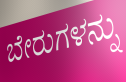
ಬೇರುಗಳನ್ನು